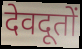
देवदूतों